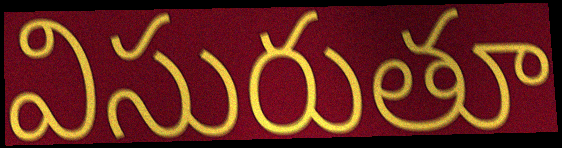
విసురుతూ